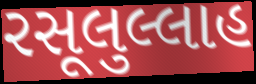
રસૂલુલ્લાહ